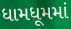
ધામધૂમમાં